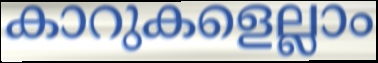
കാറുകളെല്ലാം